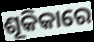
ଶୂକିକାରେ